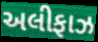
અલીફાઝ